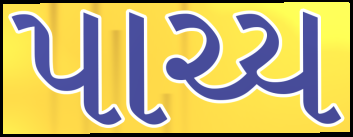
પાચ્ય